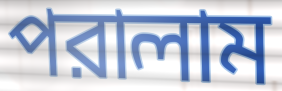
পরালাম